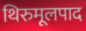
थिरुमूलपाद